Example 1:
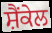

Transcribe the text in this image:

ਸ਼ੈਂਕੇਲ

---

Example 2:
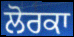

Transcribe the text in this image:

ਲੋਰਕਾ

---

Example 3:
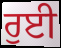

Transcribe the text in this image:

ਰੁਈ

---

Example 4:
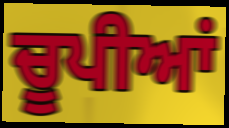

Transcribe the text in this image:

ਚੂਪੀਆਂ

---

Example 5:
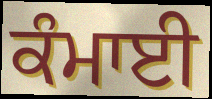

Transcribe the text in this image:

ਕੰਮਾਈ